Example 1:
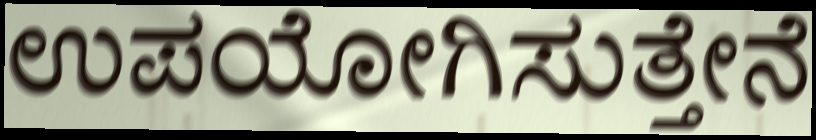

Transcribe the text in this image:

ಉಪಯೋಗಿಸುತ್ತೇನೆ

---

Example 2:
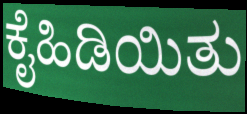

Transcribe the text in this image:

ಕೈಹಿಡಿಯಿತು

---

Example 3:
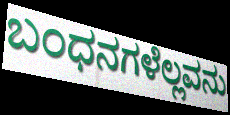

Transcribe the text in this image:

ಬಂಧನಗಳೆಲ್ಲವನು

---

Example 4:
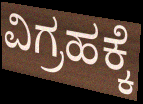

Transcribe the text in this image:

ವಿಗ್ರಹಕ್ಕೆ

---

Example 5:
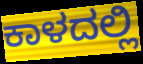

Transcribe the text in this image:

ಕಾಳದಲ್ಲಿ